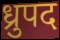
ध्रुपद